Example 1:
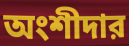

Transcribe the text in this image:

অংশীদার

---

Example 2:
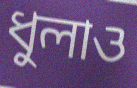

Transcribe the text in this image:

ধুলাও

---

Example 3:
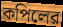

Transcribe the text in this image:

কপিলের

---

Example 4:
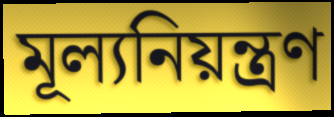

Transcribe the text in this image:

মূল্যনিয়ন্ত্রণ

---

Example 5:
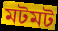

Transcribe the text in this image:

মটমট